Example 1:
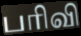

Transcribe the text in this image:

பரிவி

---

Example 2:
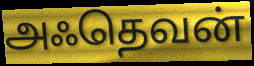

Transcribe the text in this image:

அஃதெவன்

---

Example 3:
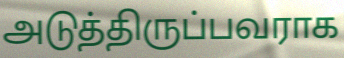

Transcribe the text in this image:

அடுத்திருப்பவராக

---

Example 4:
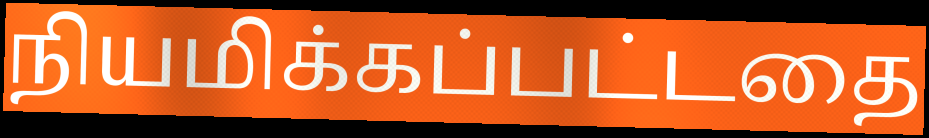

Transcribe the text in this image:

நியமிக்கப்பட்டதை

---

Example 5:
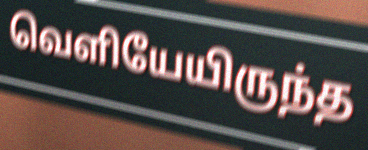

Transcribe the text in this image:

வெளியேயிருந்த